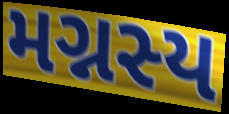
મગ્નસ્ય